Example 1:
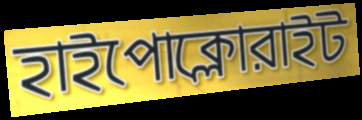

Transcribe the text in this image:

হাইপোক্লোরাইট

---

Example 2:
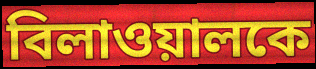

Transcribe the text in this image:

বিলাওয়ালকে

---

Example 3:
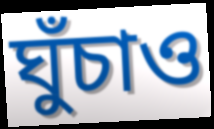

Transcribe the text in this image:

ঘুঁচাও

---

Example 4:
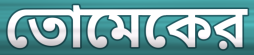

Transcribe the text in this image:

তোমেকের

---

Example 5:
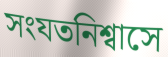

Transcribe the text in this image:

সংযতনিশ্বাসে